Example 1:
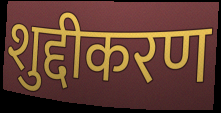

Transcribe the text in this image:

शुद्दीकरण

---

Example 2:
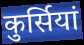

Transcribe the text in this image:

कुर्सियां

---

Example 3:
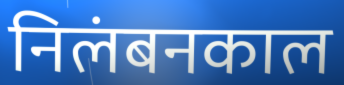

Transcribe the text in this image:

निलंबनकाल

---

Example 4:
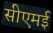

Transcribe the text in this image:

सीएमई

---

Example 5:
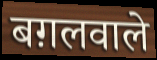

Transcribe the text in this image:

बग़लवाले